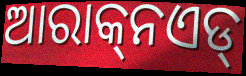
ଆରାକ୍‌ନଏଡ୍